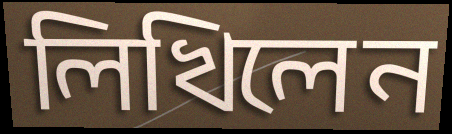
লিখিলেন